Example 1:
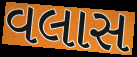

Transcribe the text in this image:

વલાસ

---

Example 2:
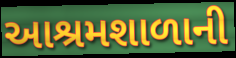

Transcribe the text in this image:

આશ્રમશાળાની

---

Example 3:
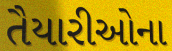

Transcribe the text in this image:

તૈયારીઓના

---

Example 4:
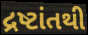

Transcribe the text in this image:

દ્રષ્ટાંતથી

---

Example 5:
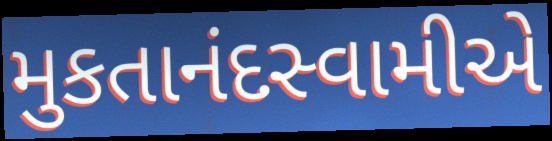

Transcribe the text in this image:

મુકતાનંદસ્વામીએ